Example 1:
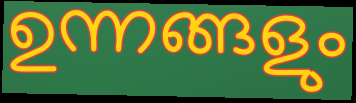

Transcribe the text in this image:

ഉന്നങ്ങളും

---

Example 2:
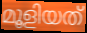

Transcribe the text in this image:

മൂളിയത്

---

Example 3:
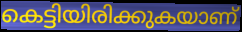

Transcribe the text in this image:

കെട്ടിയിരിക്കുകയാണ്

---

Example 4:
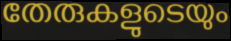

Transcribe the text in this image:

തേരുകളുടെയും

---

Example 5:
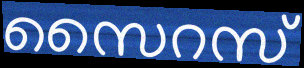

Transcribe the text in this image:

സൈറസ്